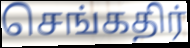
செங்கதிர்